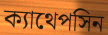
ক্যাথেপসিন